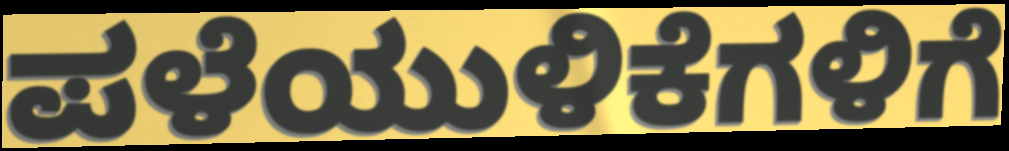
ಪಳೆಯುಳಿಕೆಗಳಿಗೆ